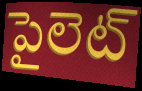
పైలెట్